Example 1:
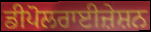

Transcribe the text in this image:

ਡੀਪੋਲਰਾਈਜ਼ੇਸ਼ਨ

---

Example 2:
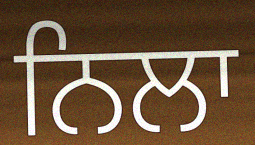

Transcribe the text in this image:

ਨਿਲਾ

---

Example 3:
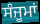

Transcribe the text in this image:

ਸੰਜੂਮਾਂ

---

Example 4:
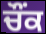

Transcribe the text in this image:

ਚੌਂਕ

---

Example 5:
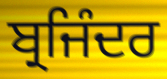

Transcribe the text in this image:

ਬ੍ਰਜਿੰਦਰ